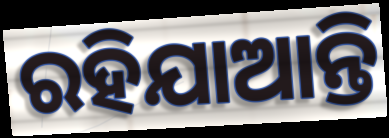
ରହିଯାଆନ୍ତି